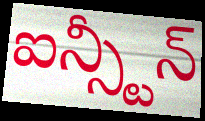
ఐన్స్టీన్